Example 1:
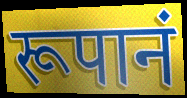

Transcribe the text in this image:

रूपानं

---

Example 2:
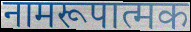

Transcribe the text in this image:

नामरूपात्मक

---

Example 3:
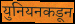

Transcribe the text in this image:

युनियनकडून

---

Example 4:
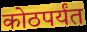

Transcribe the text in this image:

कोठपर्यंत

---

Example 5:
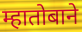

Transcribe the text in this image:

म्हातोबाने